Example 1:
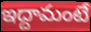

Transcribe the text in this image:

ఇద్దామంటే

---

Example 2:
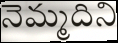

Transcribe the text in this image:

నెమ్మదిని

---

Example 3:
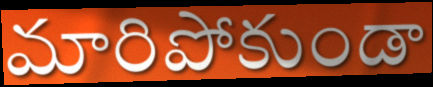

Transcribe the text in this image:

మారిపోకుండా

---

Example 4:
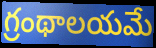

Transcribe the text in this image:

గ్రంథాలయమే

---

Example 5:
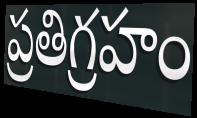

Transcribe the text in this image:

ప్రతిగ్రహం